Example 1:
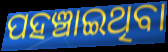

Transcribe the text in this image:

ପହଞ୍ଚାଇଥିବା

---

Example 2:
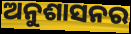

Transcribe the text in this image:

ଅନୁଶାସନର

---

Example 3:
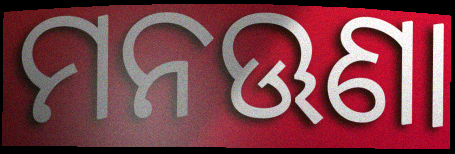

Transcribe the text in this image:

ମନଊଣା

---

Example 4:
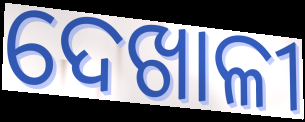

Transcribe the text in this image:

ଦେଖାଳୀ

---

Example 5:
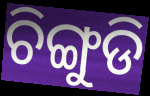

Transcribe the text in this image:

ଚିଙ୍ଗୁଡି